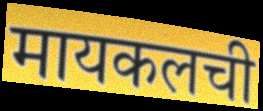
मायकलची